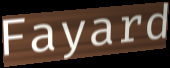
Fayard